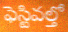
ఫెస్టివల్తో